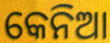
କେନିଆ